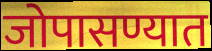
जोपासण्यात